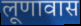
लूणावास